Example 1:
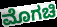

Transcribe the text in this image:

ಮೊಗಚಿ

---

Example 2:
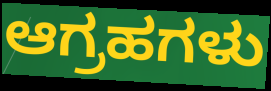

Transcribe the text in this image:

ಆಗ್ರಹಗಳು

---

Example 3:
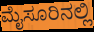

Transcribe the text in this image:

ಮೈಸೂರಿನಲ್ಲಿ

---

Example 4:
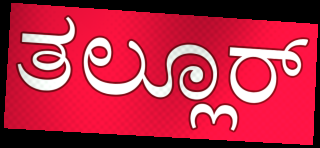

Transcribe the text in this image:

ತಲ್ಲೂರ್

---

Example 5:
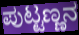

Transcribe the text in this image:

ಪುಟ್ಟಣ್ಣನ